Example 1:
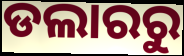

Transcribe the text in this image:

ଡଲାରରୁ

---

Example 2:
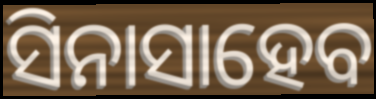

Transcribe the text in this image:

ସିନାସାହେବ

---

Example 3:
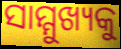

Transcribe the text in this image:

ସାମ୍ମୁଖ୍ୟକୁ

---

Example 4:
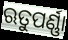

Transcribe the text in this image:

ଋତୁପର୍ଣ୍ଣା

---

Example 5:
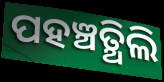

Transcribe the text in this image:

ପହଞ୍ଚତ୍ଥିଲି